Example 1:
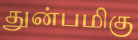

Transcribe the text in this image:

துன்பமிகு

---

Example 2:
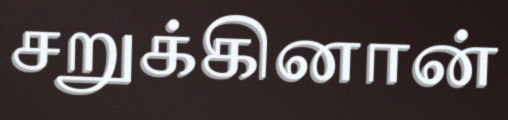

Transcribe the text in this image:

சறுக்கினான்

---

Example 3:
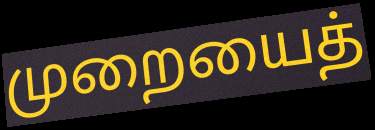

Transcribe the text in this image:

முறையைத்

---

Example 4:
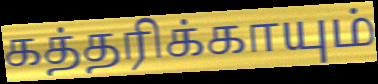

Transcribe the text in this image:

கத்தரிக்காயும்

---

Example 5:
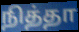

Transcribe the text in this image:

நித்தா